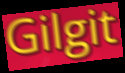
Gilgit